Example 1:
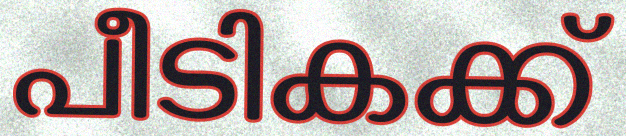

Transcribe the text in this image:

പീടികക്ക്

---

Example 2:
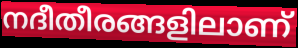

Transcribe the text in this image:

നദീതീരങ്ങളിലാണ്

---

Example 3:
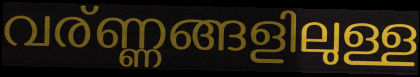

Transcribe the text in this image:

വര്ണ്ണങ്ങളിലുള്ള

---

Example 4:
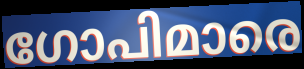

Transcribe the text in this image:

ഗോപിമാരെ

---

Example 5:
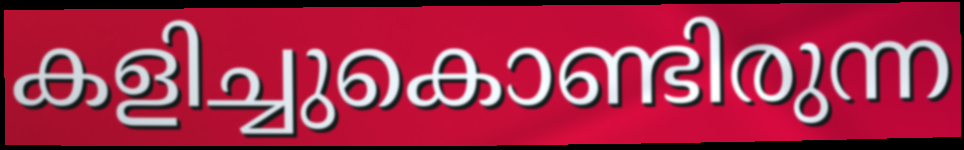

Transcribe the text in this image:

കളിച്ചുകൊണ്ടിരുന്ന